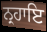
ਨ੍ਰਹਾਇ